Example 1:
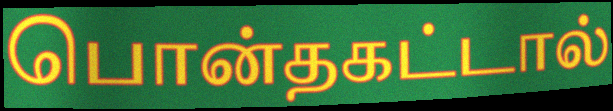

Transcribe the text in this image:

பொன்தகட்டால்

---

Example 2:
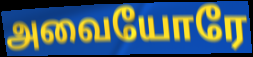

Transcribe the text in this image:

அவையோரே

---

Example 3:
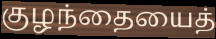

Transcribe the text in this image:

குழந்தையைத்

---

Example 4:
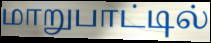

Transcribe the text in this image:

மாறுபாட்டில்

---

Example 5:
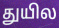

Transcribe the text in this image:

துயில